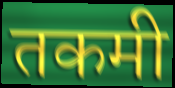
तकमी